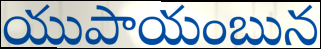
యుపాయంబున